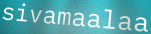
sivamaalaa